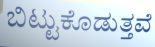
ಬಿಟ್ಟುಕೊಡುತ್ತವೆ